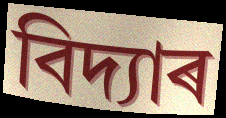
বিদ্যাৰ